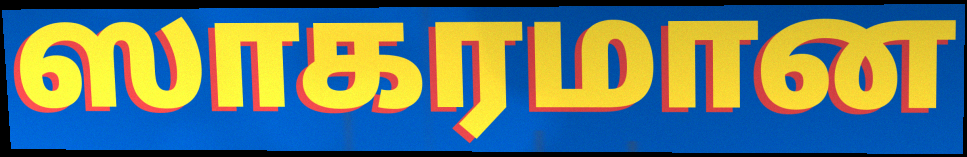
ஸாகரமான